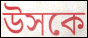
উসকে